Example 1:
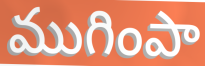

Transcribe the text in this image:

ముగింపా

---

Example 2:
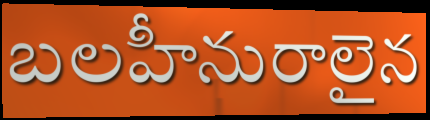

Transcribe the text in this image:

బలహీనురాలైన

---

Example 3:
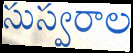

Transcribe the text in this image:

సుస్వరాల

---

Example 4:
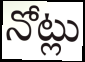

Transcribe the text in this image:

నోట్లు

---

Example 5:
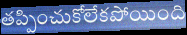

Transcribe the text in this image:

తప్పించుకోలేకపోయింది